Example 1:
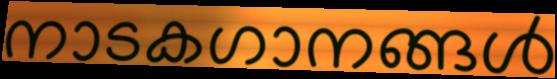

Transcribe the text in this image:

നാടകഗാനങ്ങൾ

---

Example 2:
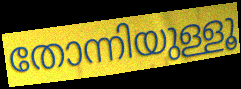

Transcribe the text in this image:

തോന്നിയുള്ളൂ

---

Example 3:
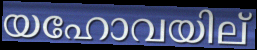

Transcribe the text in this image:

യഹോവയില്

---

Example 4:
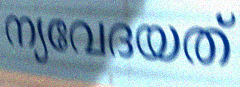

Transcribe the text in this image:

ന്യവേദയത്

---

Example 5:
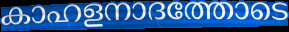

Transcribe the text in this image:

കാഹളനാദത്തോടെ